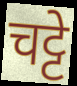
चट्टे